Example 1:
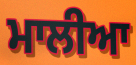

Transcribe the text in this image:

ਮਾਲੀਆ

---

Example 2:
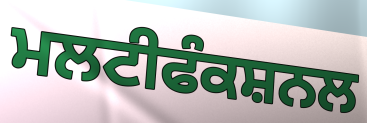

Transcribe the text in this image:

ਮਲਟੀਫੰਕਸ਼ਨਲ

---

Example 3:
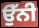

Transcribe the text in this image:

ਉੱਨੀ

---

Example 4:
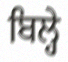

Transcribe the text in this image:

ਬਿਲ੍ਹੇ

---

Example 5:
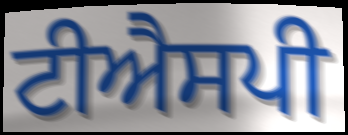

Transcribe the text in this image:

ਟੀਐਸਪੀ